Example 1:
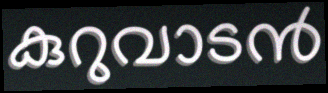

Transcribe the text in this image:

കുറുവാടൻ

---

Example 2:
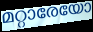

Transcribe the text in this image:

മറ്റാരേയോ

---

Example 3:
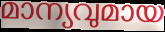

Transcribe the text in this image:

മാന്യവുമായ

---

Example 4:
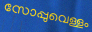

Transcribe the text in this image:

സോപ്പുവെള്ളം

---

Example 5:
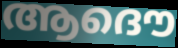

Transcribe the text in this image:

ആദൌ